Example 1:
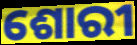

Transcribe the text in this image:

ଶୋରୀ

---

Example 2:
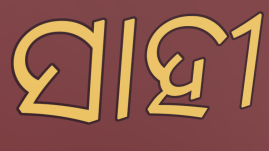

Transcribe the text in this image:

ସାହୀ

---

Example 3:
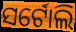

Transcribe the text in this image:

ସର୍ଟୋଲି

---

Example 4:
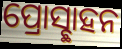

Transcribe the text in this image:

ପ୍ରୋସ୍ଛାହନ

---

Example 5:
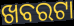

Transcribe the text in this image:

ଖବରଟା